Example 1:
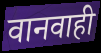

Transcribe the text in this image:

वानवाही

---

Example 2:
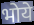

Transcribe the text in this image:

भोये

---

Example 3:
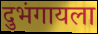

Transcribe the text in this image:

दुभंगायला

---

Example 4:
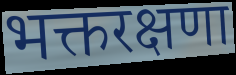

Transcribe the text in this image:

भक्तरक्षणा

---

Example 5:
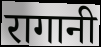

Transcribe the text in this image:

रागानी